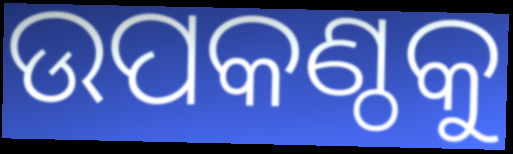
ଉପକଣ୍ଠକୁ